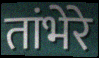
तांभेरे